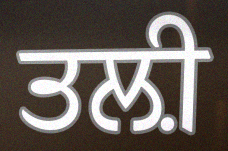
ਤਲ਼ੀ